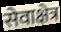
सेवाक्षेत्र